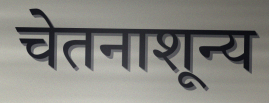
चेतनाशून्य